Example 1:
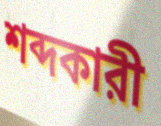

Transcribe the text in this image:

শব্দকারী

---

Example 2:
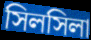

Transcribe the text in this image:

সিলসিলা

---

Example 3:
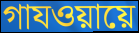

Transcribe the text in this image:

গাযওয়ায়ে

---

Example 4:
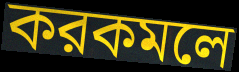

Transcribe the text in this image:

করকমলে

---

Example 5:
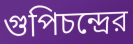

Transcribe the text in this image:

গুপিচন্দ্রের